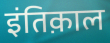
इंतिक़ाल